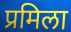
प्रमिला